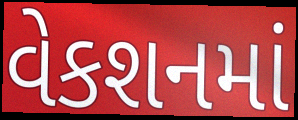
વેકશનમાં